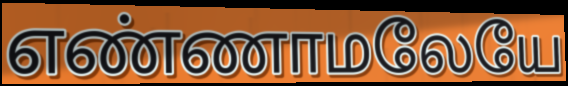
எண்ணாமலேயே